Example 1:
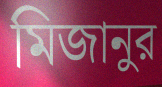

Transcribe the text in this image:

মিজানুর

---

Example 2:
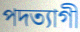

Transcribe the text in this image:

পদত্যাগী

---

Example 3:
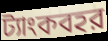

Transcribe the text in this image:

ট্যাংকবহর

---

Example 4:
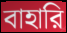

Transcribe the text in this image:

বাহারি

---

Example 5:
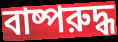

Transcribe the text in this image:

বাষ্পরুদ্ধ